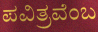
ಪವಿತ್ರವೆಂಬ